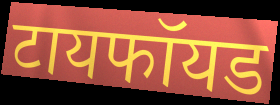
टायफॉयड